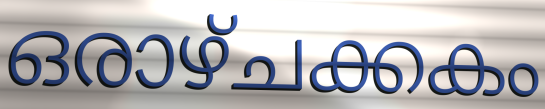
ഒരാഴ്ചക്കകം